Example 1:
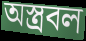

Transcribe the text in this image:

অস্ত্রবল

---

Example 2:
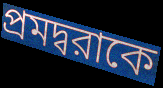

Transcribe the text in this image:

প্রমদ্বরাকে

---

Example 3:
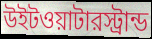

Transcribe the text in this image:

উইটওয়াটারস্ট্রান্ড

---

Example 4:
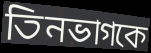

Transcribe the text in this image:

তিনভাগকে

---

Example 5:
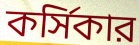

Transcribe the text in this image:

কর্সিকার